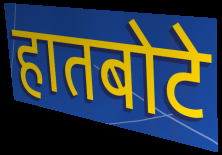
हातबोटे